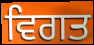
ਵਿਗਤ